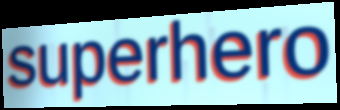
superhero